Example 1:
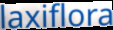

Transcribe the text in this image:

laxiflora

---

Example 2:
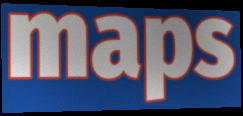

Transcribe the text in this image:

maps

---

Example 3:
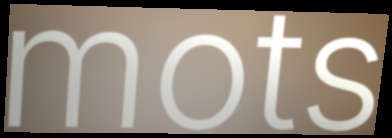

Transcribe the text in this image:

mots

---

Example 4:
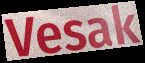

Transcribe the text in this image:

Vesak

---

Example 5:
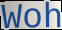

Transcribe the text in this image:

Woh